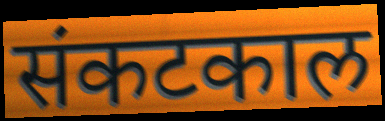
संकटकाल